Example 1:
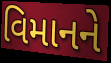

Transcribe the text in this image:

વિમાનને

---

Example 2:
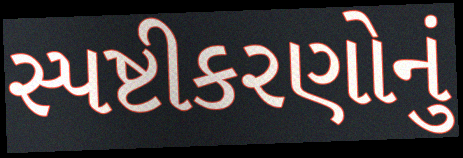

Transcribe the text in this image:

સ્પષ્ટીકરણોનું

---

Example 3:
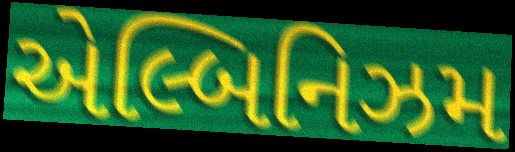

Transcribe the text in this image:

એલ્બિનિઝમ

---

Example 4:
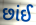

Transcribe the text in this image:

છાંઈ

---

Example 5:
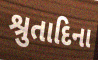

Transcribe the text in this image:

શ્રુતાદિના